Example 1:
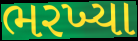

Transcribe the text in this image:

ભરખ્યા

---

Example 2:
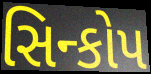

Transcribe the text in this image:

સિન્કોપ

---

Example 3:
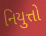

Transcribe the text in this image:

નિયુત્તો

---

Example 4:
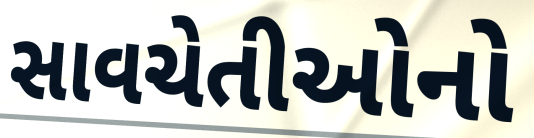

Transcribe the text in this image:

સાવચેતીઓનો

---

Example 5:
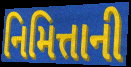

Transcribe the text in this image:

નિમિત્તાની